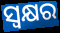
ସ୍ୱକ୍ଷର